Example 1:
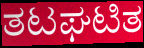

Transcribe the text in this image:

ತಟಘಟಿತ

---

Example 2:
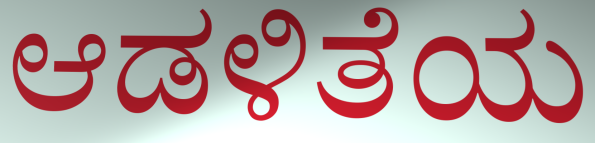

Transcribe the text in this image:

ಆಡಳಿತೆಯ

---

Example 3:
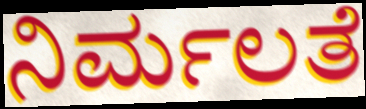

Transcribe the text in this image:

ನಿರ್ಮಲತೆ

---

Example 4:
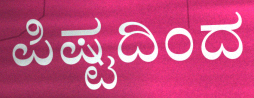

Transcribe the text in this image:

ಪಿಷ್ಟದಿಂದ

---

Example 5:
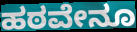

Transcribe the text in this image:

ಹಠವೇನೂ